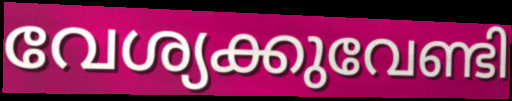
വേശ്യക്കുവേണ്ടി